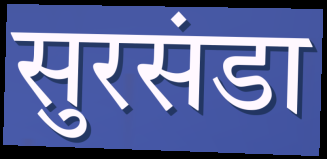
सुरसंडा